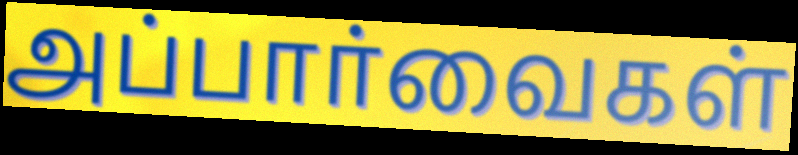
அப்பார்வைகள்